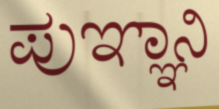
ಪುಞ್ಞಾನಿ